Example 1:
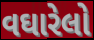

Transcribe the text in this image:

વઘારેલો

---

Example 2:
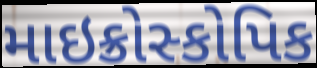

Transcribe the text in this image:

માઇક્રોસ્કોપિક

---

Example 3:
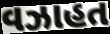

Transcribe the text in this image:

વઝાહત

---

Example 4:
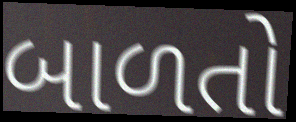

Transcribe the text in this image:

બાળતો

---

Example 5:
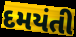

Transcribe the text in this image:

દમયંતી